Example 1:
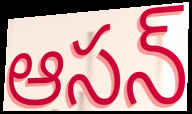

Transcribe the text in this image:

ఆసన్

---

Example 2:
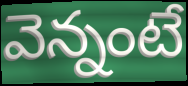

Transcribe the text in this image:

వెన్నంటే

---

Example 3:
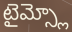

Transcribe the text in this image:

టైమ్స్లో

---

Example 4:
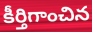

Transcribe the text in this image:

కీర్తిగాంచిన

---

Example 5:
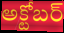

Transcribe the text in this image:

అక్టోబర్